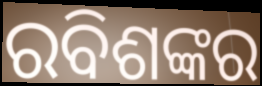
ରବିଶଙ୍କର